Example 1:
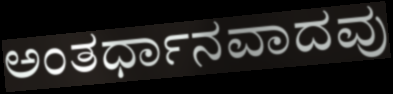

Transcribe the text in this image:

ಅಂತರ್ಧಾನವಾದವು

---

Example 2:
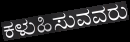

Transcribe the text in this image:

ಕಳುಹಿಸುವವರು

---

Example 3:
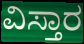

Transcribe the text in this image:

ವಿಸ್ತಾರ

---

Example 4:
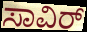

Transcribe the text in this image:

ಸಾವಿರ್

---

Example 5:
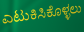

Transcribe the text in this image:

ಎಟುಕಿಸಿಕೊಳ್ಳಲು